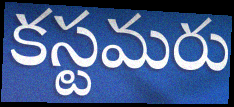
కస్టమరు